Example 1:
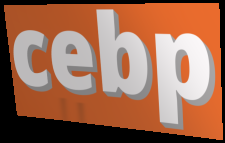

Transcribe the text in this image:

cebp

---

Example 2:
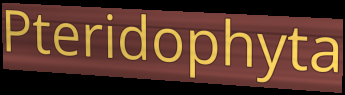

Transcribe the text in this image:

Pteridophyta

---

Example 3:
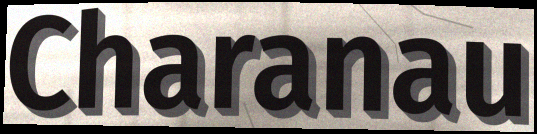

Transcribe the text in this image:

Charanau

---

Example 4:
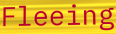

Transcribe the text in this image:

Fleeing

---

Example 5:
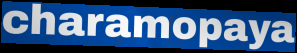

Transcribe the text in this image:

charamopaya